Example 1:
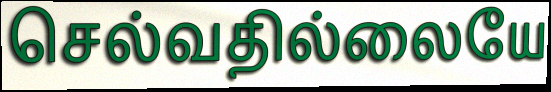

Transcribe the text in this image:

செல்வதில்லையே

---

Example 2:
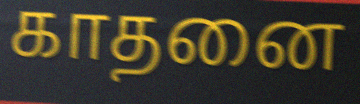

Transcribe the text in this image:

காதனை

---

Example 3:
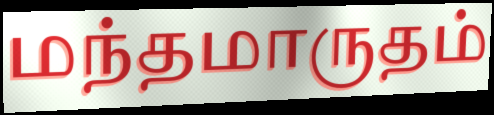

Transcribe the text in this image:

மந்தமாருதம்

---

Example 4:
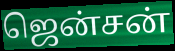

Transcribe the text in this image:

ஜென்சன்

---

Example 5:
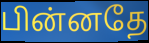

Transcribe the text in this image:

பின்னதே